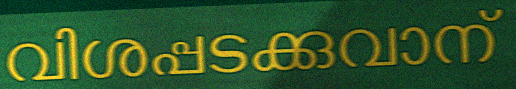
വിശപ്പടക്കുവാന്